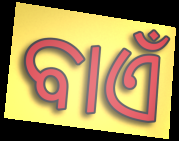
ବାଏଁ